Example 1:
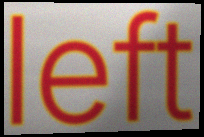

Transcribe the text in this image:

left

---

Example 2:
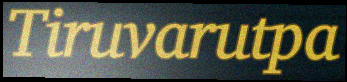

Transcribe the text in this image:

Tiruvarutpa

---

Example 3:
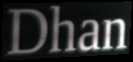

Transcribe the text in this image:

Dhan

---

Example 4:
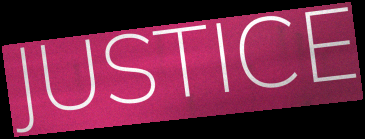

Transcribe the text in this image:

JUSTICE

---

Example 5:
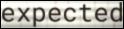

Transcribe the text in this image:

expected